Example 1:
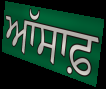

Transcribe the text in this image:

ਆੱਸਾਫ਼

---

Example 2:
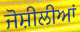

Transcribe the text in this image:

ਜੋਸ਼ੀਲੀਆਂ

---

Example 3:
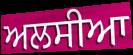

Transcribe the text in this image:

ਅਲਸੀਆ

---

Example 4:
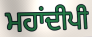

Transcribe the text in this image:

ਮਹਾਂਦੀਪੀ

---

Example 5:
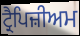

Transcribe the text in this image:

ਟ੍ਰੈਪਿਜ਼ੀਅਮ